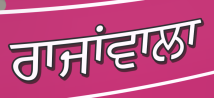
ਰਾਜਾਂਵਾਲਾ